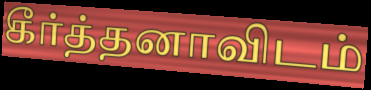
கீர்த்தனாவிடம்